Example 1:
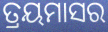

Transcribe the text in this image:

ତ୍ରୟମାସର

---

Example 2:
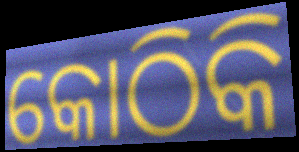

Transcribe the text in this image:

କୋଠିକି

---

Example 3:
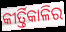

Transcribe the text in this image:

କୀର୍ତ୍ତିକାଳିର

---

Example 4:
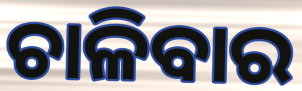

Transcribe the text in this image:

ଚାଳିବାର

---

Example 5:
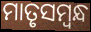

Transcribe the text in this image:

ମାତୃସମ୍ବନ୍ଧ